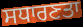
ਸਧਾਰਣਤਾ